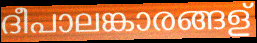
ദീപാലങ്കാരങ്ങള്